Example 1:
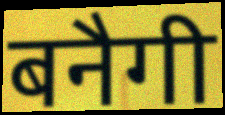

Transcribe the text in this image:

बनैगी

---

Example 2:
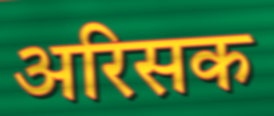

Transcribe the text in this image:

अरिसक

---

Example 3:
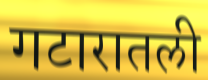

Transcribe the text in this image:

गटारातली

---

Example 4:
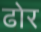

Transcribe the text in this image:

ढोर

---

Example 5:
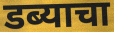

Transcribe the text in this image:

डब्याचा